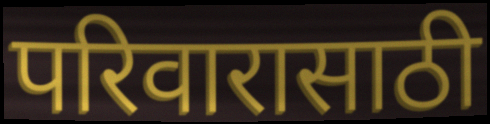
परिवारासाठी